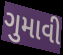
ગુમાવી